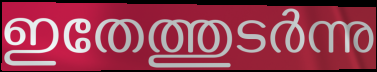
ഇതേത്തുടർന്നു